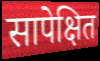
सापेक्षित